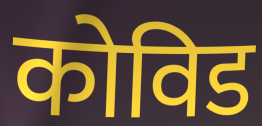
कोविड